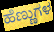
ಹೆಣ್ಣುಗಳ